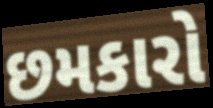
છમકારો